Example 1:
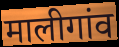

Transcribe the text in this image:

मालीगांव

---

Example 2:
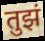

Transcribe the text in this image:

तुझं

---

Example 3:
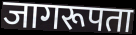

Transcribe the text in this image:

जागरूपता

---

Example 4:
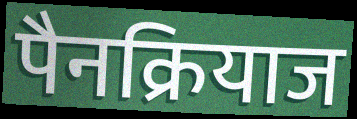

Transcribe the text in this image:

पैनक्रियाज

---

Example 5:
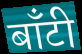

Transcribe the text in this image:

बाँटी